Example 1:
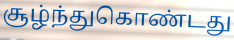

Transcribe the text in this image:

சூழ்ந்துகொண்டது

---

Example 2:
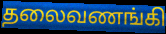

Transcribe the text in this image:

தலைவணங்கி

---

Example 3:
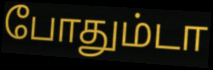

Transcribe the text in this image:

போதும்டா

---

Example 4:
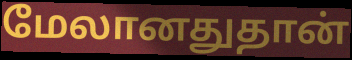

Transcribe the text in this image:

மேலானதுதான்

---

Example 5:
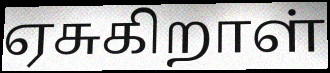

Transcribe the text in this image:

ஏசுகிறாள்